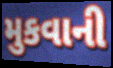
મુકવાની